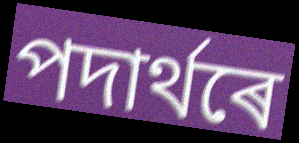
পদাৰ্থৰে